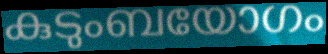
കുടുംബയോഗം